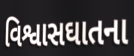
વિશ્વાસઘાતના